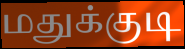
மதுக்குடி